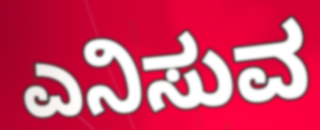
ಎನಿಸುವ